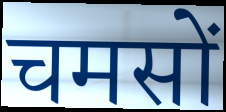
चमसों